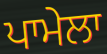
ਪਾਮੇਲਾ